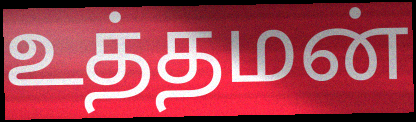
உத்தமன்